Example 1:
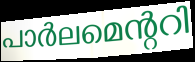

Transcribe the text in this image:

പാർലമെന്ററി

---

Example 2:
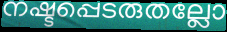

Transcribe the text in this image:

നഷ്ടപ്പെടരുതല്ലോ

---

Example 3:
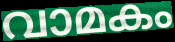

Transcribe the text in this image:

വാമകം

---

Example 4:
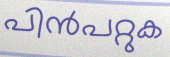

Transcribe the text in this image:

പിൻപറ്റുക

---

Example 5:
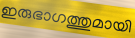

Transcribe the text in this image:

ഇരുഭാഗത്തുമായി